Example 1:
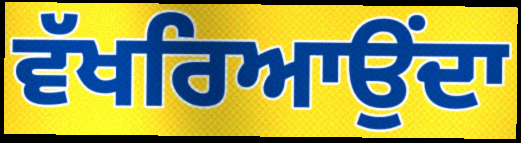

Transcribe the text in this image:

ਵੱਖਰਿਆਉਂਦਾ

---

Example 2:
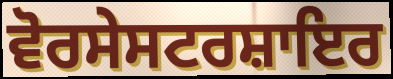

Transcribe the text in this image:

ਵੋਰਸੇਸਟਰਸ਼ਾਇਰ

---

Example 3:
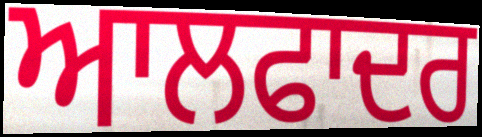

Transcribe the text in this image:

ਆਲਫਾਦਰ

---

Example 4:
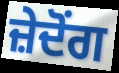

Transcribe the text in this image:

ਜ਼ੇਦੋਂਗ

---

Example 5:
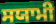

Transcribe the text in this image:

ਸਯਾਮੀ